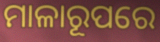
ମାଳାରୂପରେ